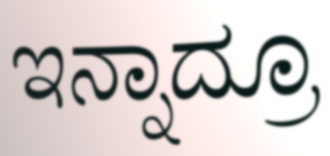
ಇನ್ನಾದ್ರೂ